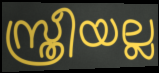
സ്ത്രീയല്ല